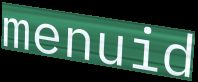
menuid